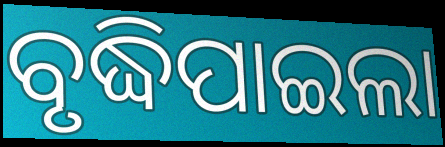
ବୃଦ୍ଧିପାଇଲା